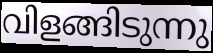
വിളങ്ങിടുന്നു